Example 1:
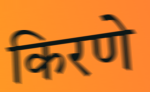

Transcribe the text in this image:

किरणे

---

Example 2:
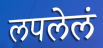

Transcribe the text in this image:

लपलेलं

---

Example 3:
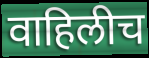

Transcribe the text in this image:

वाहिलीच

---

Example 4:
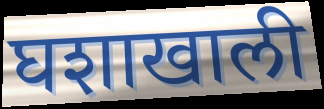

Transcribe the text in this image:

घशाखाली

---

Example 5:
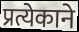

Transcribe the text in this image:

प्रत्येकाने